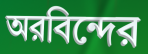
অরবিন্দের